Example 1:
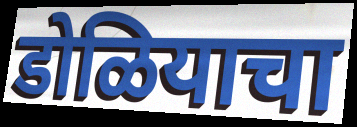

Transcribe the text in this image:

डोळियाचा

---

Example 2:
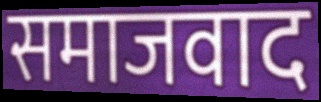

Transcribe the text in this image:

समाजवाद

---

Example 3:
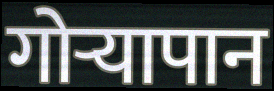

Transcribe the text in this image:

गोऱ्यापान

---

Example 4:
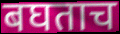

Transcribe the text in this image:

बघताच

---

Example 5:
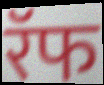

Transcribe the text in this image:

रॅफ